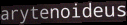
arytenoideus